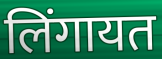
लिंगायत